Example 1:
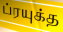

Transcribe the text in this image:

ப்ரயுக்த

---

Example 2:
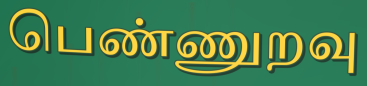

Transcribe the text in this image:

பெண்ணுறவு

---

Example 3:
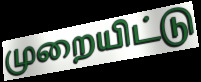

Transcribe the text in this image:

முறையிட்டு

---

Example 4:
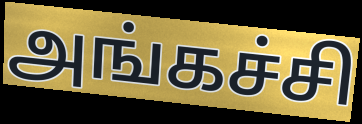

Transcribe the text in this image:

அங்கச்சி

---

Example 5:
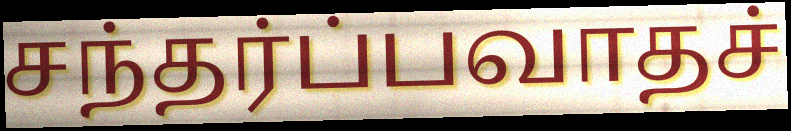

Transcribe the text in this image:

சந்தர்ப்பவாதச்